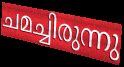
ചമച്ചിരുന്നു